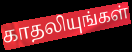
காதலியுங்கள்